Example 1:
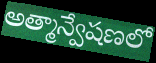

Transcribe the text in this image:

అత్మాన్వేషణలో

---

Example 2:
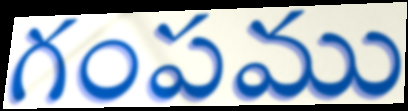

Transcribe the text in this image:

గంపము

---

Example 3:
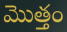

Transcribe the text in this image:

మొత్తం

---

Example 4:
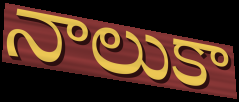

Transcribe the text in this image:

నాలుకా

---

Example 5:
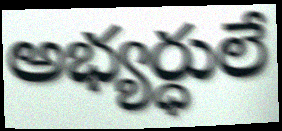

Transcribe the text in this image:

అభ్యర్ధులే